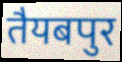
तैयबपुर